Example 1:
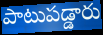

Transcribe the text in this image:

పాటుపడ్డారు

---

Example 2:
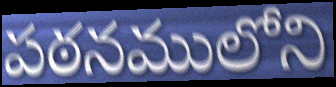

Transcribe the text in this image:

పఠనములోని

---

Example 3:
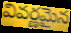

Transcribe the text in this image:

వివర్ణమైన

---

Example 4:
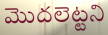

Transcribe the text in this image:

మొదలెట్టని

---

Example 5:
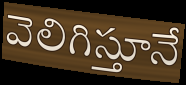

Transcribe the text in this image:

వెలిగిస్తూనే